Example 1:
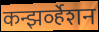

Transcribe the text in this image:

कन्झर्व्हेशन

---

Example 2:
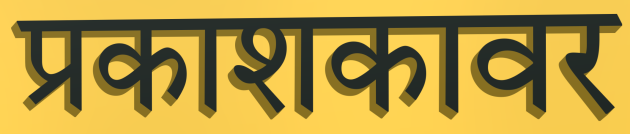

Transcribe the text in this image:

प्रकाशकावर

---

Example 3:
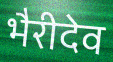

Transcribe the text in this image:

भैरीदेव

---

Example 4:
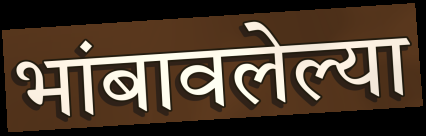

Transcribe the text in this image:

भांबावलेल्या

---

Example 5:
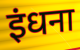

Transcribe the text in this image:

इंधना